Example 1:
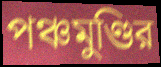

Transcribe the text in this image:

পঞ্চমুণ্ডির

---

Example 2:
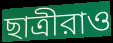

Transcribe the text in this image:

ছাত্রীরাও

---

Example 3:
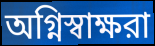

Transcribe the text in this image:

অগ্নিস্বাক্ষরা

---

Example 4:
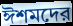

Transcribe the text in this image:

ঈশমদের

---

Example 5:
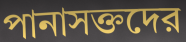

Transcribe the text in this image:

পানাসক্তদের